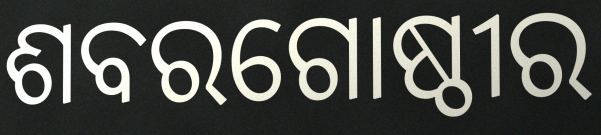
ଶବରଗୋଷ୍ଠୀର